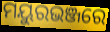
ମୟୁରଭଞ୍ଜରେ